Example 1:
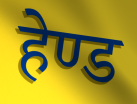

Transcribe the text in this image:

हेण्ड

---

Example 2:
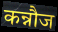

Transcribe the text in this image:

कन्नौज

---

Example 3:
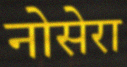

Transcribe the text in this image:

नोसेरा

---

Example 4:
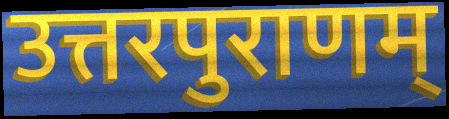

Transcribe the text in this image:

उत्तरपुराणम्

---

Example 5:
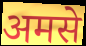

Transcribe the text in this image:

अमसे